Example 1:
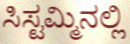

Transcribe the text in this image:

ಸಿಸ್ಟಮ್ಮಿನಲ್ಲಿ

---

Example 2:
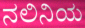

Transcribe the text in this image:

ನಲಿನಿಯ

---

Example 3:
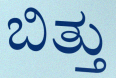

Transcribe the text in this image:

ಬಿತ್ತು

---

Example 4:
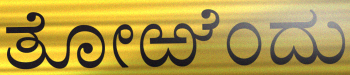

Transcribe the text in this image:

ತೋಱೆಂದು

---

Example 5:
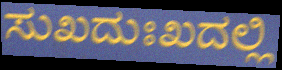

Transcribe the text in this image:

ಸುಖದುಃಖದಲ್ಲಿ